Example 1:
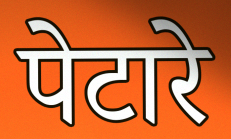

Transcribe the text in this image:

पेटारे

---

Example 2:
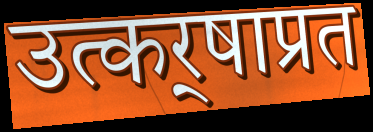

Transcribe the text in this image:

उत्कर्षाप्रत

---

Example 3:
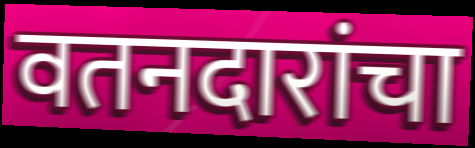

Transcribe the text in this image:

वतनदारांचा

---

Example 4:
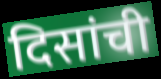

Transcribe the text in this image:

दिसांची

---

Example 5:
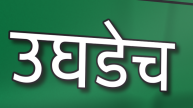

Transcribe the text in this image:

उघडेच